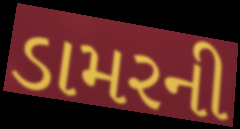
ડામરની